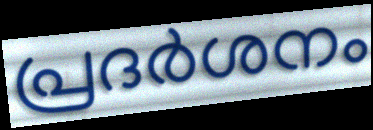
പ്രദർശനം